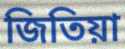
জিতিয়া